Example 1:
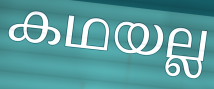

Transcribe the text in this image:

കഥയല്ല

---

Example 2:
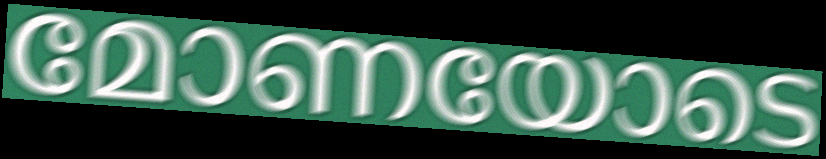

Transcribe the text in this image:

മോണയോടെ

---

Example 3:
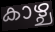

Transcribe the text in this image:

കാഴ്ച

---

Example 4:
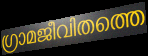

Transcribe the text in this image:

ഗ്രാമജീവിതത്തെ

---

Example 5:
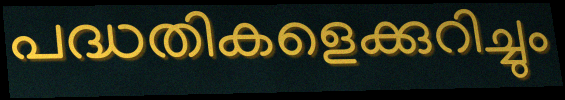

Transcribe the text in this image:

പദ്ധതികളെക്കുറിച്ചും